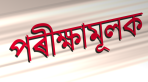
পৰীক্ষামূলক